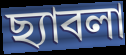
ছ্যাবলা